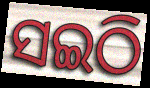
ସଇଠି